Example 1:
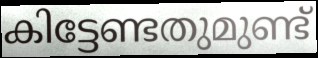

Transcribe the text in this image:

കിട്ടേണ്ടതുമുണ്ട്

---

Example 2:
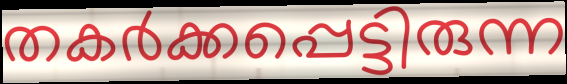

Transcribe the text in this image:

തകർക്കപ്പെട്ടിരുന്ന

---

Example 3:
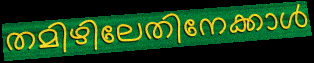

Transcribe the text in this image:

തമിഴിലേതിനേക്കാൾ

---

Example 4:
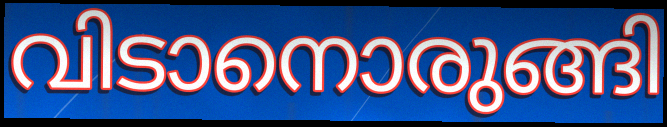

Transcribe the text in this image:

വിടാനൊരുങ്ങി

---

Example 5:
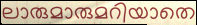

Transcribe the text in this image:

ലാരുമാരുമറിയാതെ